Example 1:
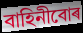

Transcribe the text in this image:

বাহিনীবোৰ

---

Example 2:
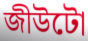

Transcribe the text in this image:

জীউটো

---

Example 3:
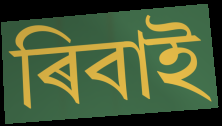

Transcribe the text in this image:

ৰিবাই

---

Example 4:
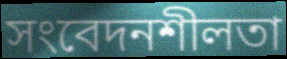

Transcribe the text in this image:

সংবেদনশীলতা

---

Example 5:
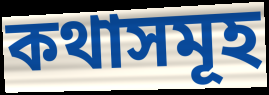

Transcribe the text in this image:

কথাসমূহ